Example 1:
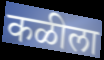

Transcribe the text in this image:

कळीला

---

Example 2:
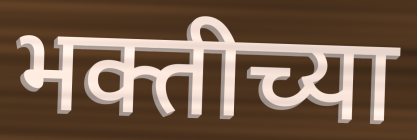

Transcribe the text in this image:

भक्‍तीच्या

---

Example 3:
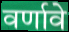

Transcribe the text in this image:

वर्णावे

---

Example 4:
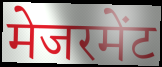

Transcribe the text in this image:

मेजरमेंट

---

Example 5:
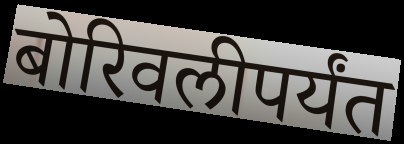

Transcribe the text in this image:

बोरिवलीपर्यंत